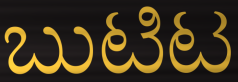
ಬುಟಿಟ